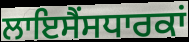
ਲਾਇਸੈਂਸਧਾਰਕਾਂ